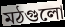
মঠগুলো